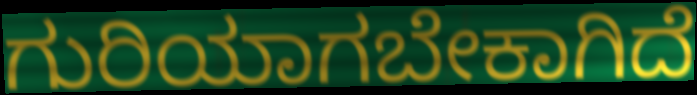
ಗುರಿಯಾಗಬೇಕಾಗಿದೆ